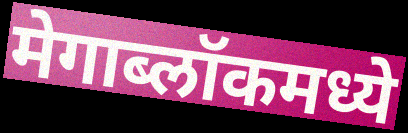
मेगाब्लॉकमध्ये